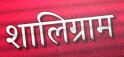
शालिग्राम